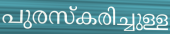
പുരസ്കരിച്ചുള്ള